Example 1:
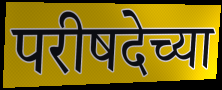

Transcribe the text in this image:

परीषदेच्या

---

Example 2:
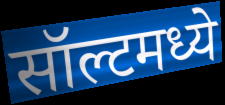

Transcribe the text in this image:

सॉल्टमध्ये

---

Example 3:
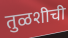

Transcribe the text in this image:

तुळशीची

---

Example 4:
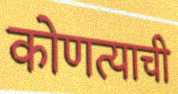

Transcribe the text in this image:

कोणत्याची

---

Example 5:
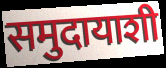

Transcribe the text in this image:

समुदायाशी